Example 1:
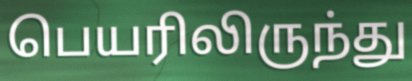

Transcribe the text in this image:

பெயரிலிருந்து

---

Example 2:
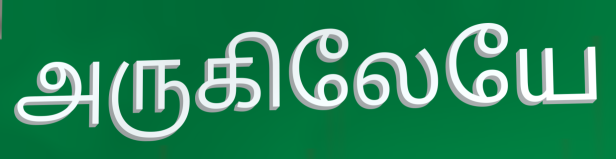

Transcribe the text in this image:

அருகிலேயே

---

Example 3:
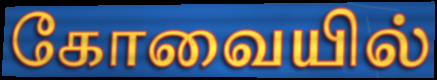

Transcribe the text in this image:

கோவையில்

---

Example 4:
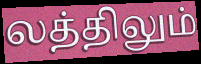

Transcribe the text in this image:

லத்திலும்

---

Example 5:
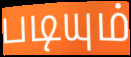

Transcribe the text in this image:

படியும்